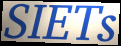
SIETs